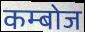
कम्बोज